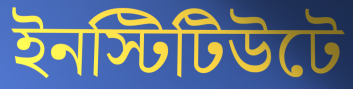
ইনস্টিটিউটে